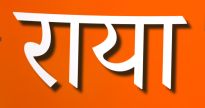
राया